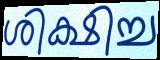
ശിക്ഷിച്ച